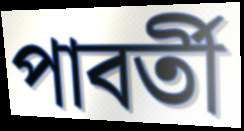
পাবর্তী